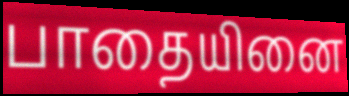
பாதையினை